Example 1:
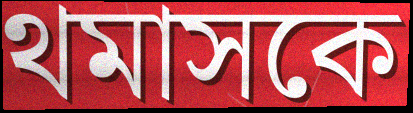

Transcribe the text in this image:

থমাসকে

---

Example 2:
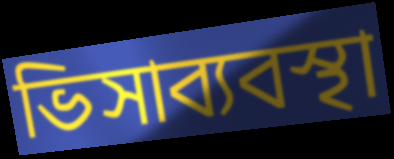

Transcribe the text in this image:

ভিসাব্যবস্থা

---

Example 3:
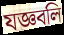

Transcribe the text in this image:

যজ্ঞবলি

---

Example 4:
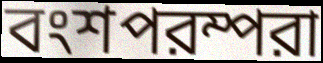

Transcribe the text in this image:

বংশপরম্পরা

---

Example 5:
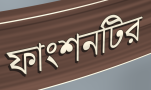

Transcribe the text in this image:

ফাংশনটির